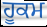
ਹੂਕਮ